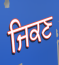
ਜਿਕਣ